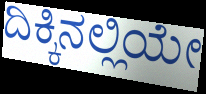
ದಿಕ್ಕಿನಲ್ಲಿಯೇ